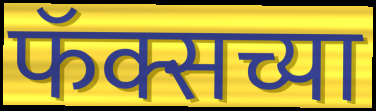
फॅक्सच्या